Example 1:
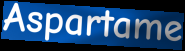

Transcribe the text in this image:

Aspartame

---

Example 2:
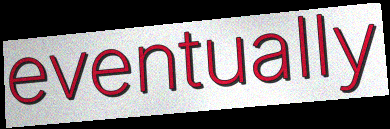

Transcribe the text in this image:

eventually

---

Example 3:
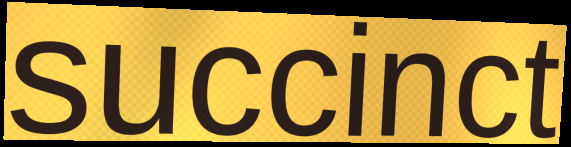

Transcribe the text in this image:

succinct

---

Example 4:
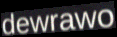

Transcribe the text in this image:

dewrawo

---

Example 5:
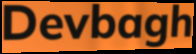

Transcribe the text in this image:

Devbagh